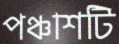
পঞ্চাশটি